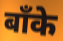
बाँके